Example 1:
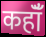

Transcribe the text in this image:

कहॉँ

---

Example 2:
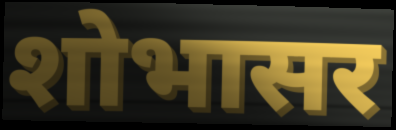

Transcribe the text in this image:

शोभासर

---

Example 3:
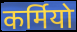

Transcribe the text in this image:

कर्मियो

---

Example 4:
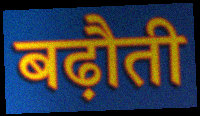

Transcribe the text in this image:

बढ़ौती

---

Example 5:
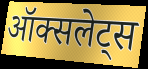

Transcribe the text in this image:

ऑक्सलेट्स